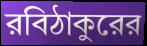
রবিঠাকুরের